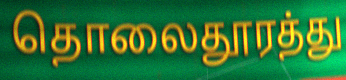
தொலைதூரத்து